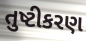
તુષ્ટીકરણ